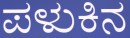
ಪಳುಕಿನ